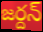
జర్దన్